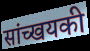
सांच्खयकी